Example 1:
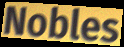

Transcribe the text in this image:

Nobles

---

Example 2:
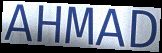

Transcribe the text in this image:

AHMAD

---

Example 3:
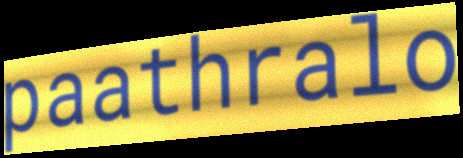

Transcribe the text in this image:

paathralo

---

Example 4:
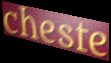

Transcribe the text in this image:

cheste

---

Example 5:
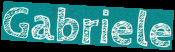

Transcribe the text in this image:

Gabriele